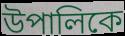
উপালিকে